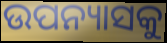
ଉପନ୍ୟାସକୁ